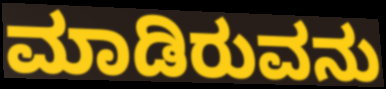
ಮಾಡಿರುವನು